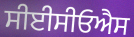
ਸੀਈਸੀਓਐਸ